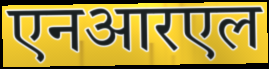
एनआरएल